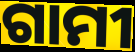
ଗାମୀ